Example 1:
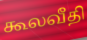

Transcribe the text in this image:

கூலவீதி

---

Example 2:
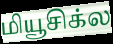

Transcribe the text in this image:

மியூசிக்ல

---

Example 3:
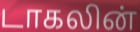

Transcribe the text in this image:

டாகலின்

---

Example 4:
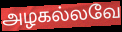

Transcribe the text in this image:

அழகல்லவே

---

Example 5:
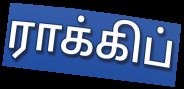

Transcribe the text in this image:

ராக்கிப்